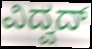
ವಿದ್ವದ್